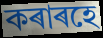
কৰাৰহে